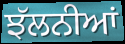
ਝੱਲਨੀਆਂ